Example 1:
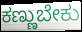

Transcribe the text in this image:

ಕಣ್ಣುಬೇಕು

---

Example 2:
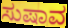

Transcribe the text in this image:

ಸುಷಾವ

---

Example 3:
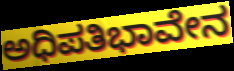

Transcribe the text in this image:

ಅಧಿಪತಿಭಾವೇನ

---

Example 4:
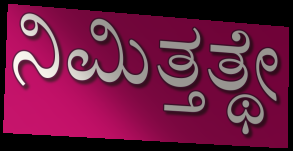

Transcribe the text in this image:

ನಿಮಿತ್ತತ್ಥೇ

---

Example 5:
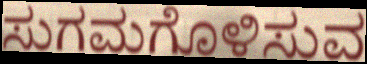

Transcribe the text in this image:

ಸುಗಮಗೊಳಿಸುವ